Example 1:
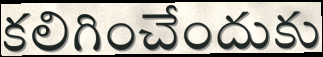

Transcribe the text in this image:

కలిగించేందుకు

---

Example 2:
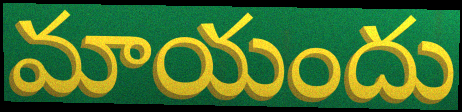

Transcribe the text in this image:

మాయందు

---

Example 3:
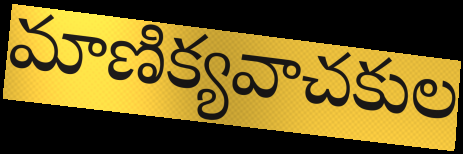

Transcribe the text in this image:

మాణిక్యవాచకుల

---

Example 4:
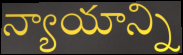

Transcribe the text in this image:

న్యాయాన్ని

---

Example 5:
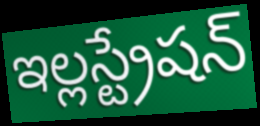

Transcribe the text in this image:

ఇల్లస్ట్రేషన్